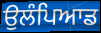
ਉਲੰਪਿਆਡ